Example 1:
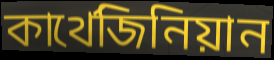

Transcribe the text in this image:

কার্থেজিনিয়ান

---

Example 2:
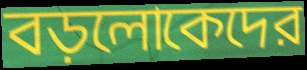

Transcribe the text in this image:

বড়লোকেদের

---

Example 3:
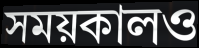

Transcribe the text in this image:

সময়কালও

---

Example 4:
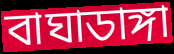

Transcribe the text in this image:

বাঘাডাঙ্গা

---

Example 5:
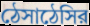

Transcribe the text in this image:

ঠেসাঠেসির